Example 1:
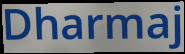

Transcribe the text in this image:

Dharmaj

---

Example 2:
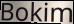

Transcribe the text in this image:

Bokim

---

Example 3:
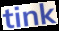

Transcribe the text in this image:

tink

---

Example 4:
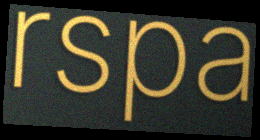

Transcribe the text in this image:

rspa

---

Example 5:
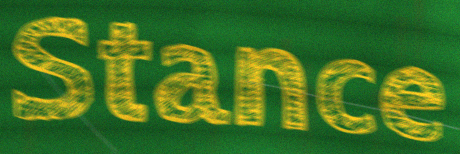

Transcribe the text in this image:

Stance